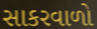
સાકરવાળો